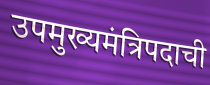
उपमुख्यमंत्रिपदाची